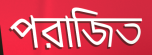
পরাজিত